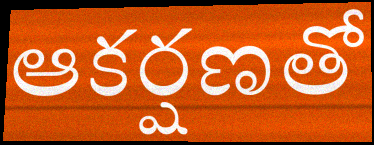
ఆకర్షణతో